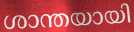
ശാന്തയായി